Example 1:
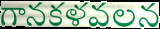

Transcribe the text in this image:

గానకళవలన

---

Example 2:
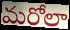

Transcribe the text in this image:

మరోలా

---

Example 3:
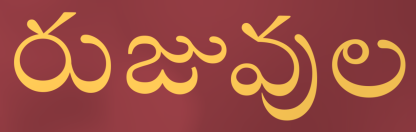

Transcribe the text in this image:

రుజువుల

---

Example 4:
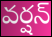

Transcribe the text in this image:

వర్షన్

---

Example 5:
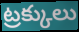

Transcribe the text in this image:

ట్రక్కులు